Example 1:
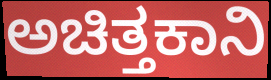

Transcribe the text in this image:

ಅಚಿತ್ತಕಾನಿ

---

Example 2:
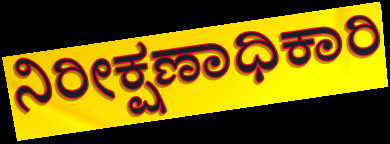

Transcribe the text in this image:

ನಿರೀಕ್ಷಣಾಧಿಕಾರಿ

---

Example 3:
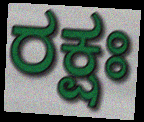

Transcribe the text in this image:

ರಕ್ಷಃ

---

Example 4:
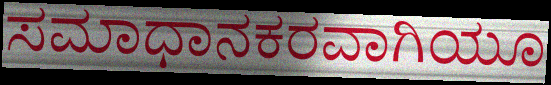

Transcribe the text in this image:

ಸಮಾಧಾನಕರವಾಗಿಯೂ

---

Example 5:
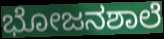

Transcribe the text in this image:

ಭೋಜನಶಾಲೆ